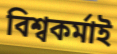
বিশ্বকৰ্মাই